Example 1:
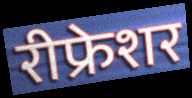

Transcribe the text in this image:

रीफ्रेशर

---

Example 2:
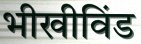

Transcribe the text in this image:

भीखीविंड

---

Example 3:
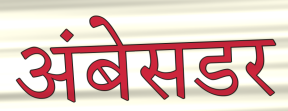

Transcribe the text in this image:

अंबेसडर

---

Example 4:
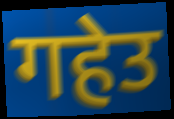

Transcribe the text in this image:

गहेउ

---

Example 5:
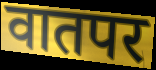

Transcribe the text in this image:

वातपर